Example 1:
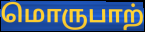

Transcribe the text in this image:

மொருபாற்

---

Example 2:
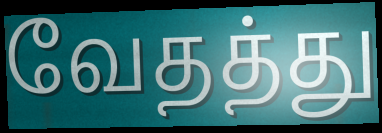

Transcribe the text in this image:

வேதத்து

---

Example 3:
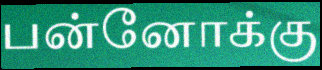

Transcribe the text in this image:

பன்னோக்கு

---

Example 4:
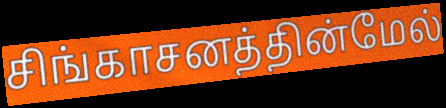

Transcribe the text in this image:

சிங்காசனத்தின்மேல்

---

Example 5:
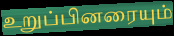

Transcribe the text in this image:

உறுப்பினரையும்